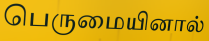
பெருமையினால்